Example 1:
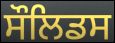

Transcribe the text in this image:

ਸੌਲਿਡਸ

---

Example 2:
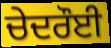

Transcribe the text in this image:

ਚੇਦਰੌਈ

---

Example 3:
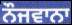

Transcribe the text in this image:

ਨੌਜਵਾਨਾ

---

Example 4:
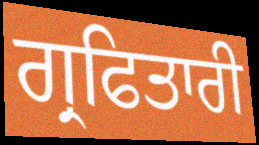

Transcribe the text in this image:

ਗ੍ਰਫਿਤਾਰੀ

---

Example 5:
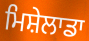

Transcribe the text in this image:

ਮਿਸ਼ੇਲਾਡਾ